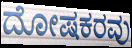
ದೋಷಕರವು